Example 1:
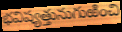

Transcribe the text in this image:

భవిష్యత్తునుగుఱించి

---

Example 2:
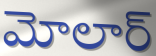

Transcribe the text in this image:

మోలార్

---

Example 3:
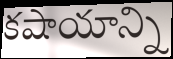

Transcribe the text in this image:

కషాయాన్ని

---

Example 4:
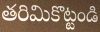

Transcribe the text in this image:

తరిమికొట్టండి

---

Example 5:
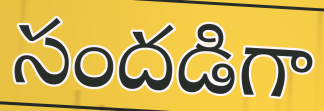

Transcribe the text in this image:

సందడిగా